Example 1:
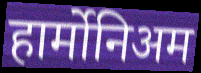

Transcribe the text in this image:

हार्मोनिअम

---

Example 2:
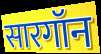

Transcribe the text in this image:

सारगॉन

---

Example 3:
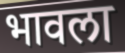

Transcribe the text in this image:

भावला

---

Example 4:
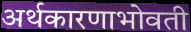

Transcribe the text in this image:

अर्थकारणाभोवती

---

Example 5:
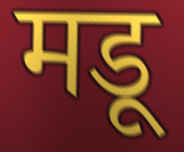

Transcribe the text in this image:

मडू